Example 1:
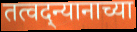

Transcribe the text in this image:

तत्वद्न्यानाच्या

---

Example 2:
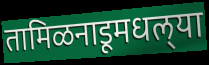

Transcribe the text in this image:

तामिळनाडूमधल्या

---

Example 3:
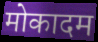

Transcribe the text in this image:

मोकादम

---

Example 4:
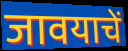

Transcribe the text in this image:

जावयाचें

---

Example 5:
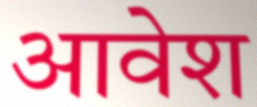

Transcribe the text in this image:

आवेश